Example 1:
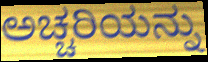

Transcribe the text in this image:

ಅಚ್ಚರಿಯನ್ನು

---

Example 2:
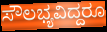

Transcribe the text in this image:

ಸೌಲಭ್ಯವಿದ್ದರೂ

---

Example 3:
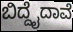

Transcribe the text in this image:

ಬಿದ್ದೈದಾವೆ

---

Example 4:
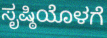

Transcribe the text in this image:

ಸೃಷ್ಠಿಯೊಳಗೆ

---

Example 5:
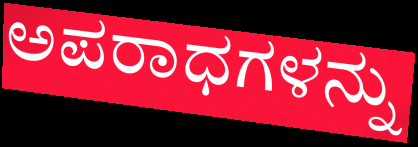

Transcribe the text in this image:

ಅಪರಾಧಗಳನ್ನು